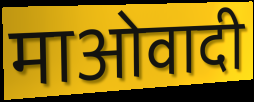
माओवादी